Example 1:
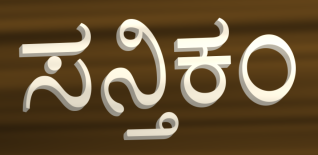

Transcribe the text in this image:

ಸನ್ತಿಕಂ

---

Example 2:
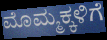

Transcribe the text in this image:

ಮೊಮ್ಮಕ್ಕಳಿಗೆ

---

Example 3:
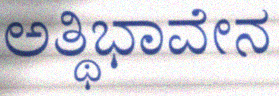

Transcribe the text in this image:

ಅತ್ಥಿಭಾವೇನ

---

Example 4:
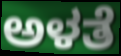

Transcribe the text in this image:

ಅಳತೆ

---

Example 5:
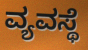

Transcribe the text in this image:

ವ್ಯವಸ್ಥೆ